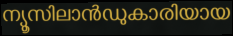
ന്യൂസിലാൻഡുകാരിയായ